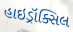
હાઇડ્રૉક્સિલ